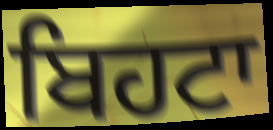
ਬਿਹਟਾ